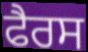
ਫੈਰਸ